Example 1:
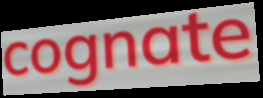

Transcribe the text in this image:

cognate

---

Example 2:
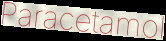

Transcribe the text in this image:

Paracetamol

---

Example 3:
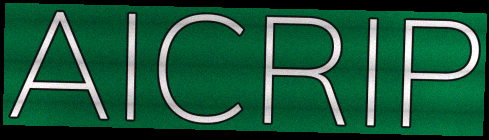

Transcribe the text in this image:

AICRIP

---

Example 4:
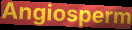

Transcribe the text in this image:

Angiosperm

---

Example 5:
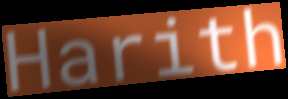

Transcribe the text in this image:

Harith